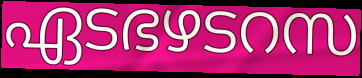
ഏടഭഴടറസ